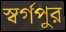
স্বর্গপুর